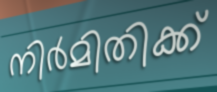
നിർമിതിക്ക്